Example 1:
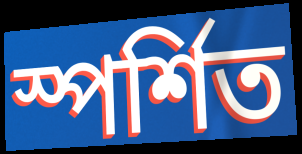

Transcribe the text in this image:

স্পর্শিত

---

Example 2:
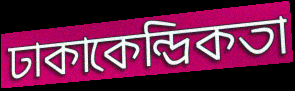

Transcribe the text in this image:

ঢাকাকেন্দ্রিকতা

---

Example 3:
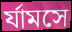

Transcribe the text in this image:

র্যামসে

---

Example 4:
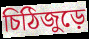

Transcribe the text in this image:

চিঠিজুড়ে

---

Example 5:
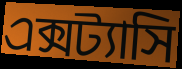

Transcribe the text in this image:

এক্সট্যাসি